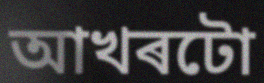
আখৰটো